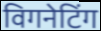
विगनेटिंग